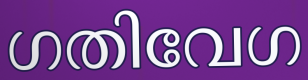
ഗതിവേഗ